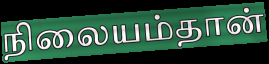
நிலையம்தான்